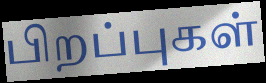
பிறப்புகள்